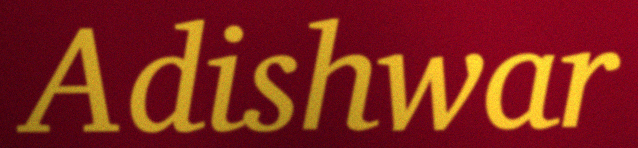
Adishwar